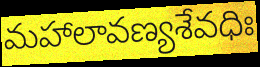
మహాలావణ్యశేవధిః